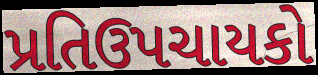
પ્રતિઉપચાયકો